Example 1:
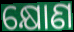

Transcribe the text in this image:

କ୍ଷୋଣ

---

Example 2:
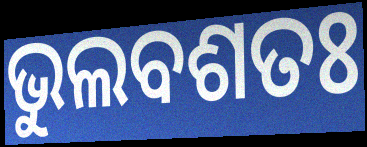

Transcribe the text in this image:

ଭୁଲବଶତଃ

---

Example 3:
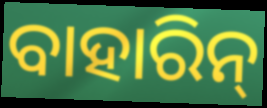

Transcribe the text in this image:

ବାହାରିନ୍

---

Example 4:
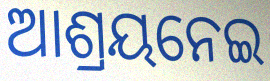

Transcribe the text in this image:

ଆଶ୍ରୟନେଇ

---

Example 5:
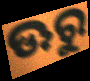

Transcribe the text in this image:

ଊରୁ